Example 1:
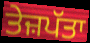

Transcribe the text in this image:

ਤੇਜ਼ਪੱਤਾ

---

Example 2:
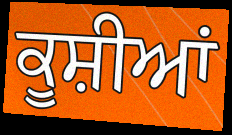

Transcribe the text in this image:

ਕੂਸ਼ੀਆਂ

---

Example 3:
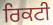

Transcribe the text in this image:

ਰਿਕਟੀ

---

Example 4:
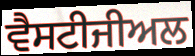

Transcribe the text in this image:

ਵੈਸਟੀਜੀਅਲ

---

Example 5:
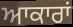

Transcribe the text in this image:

ਆਕਾਰਾਂ